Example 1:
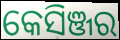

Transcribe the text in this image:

କେସିଞ୍ଜର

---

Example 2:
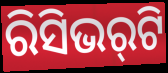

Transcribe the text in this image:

ରିସିଭର୍‌ଟି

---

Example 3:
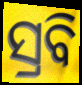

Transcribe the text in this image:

ସ୍ରବି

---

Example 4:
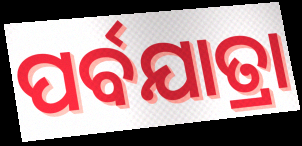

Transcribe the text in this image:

ପର୍ବଯାତ୍ରା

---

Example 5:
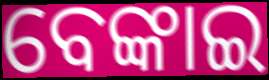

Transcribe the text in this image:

ବେଙ୍କାଇ